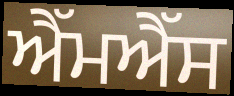
ਐੱਮਐੱਸ